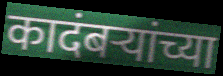
कादंबऱ्यांच्या